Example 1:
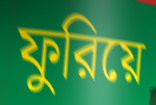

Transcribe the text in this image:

ফুরিয়ে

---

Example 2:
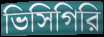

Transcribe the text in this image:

ভিসিগিরি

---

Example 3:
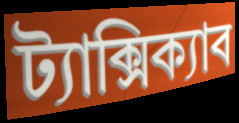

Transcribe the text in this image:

ট্যাক্সিক্যাব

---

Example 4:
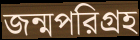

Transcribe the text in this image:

জন্মপরিগ্রহ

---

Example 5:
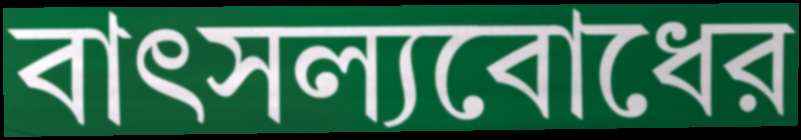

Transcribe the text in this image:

বাৎসল্যবোধের